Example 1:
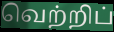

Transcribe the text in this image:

வெற்றிப்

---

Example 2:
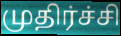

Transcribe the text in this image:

முதிர்ச்சி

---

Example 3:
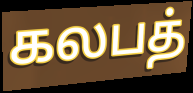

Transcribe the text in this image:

கலபத்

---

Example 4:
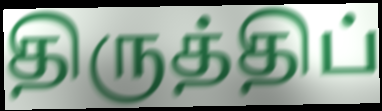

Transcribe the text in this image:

திருத்திப்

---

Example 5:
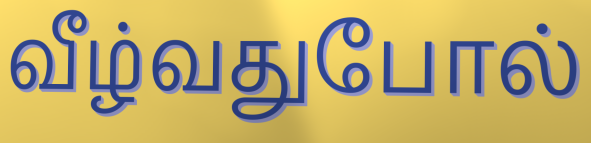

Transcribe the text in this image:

வீழ்வதுபோல்